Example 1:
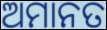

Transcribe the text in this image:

ଅମାନତ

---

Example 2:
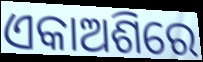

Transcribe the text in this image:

ଏକାଅଶିରେ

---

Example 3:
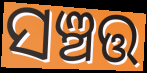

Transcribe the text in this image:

ସଞ୍ଚତ୍ତ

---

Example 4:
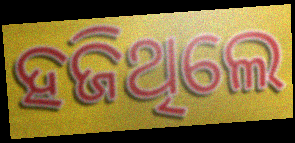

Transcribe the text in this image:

ହଜିଥିଲେ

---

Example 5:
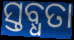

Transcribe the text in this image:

ସ୍ତବ୍ଧତା